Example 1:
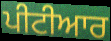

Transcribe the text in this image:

ਪੀਟੀਆਰ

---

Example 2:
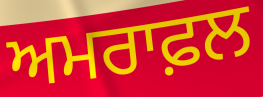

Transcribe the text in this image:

ਅਮਰਾਫ਼ਲ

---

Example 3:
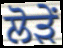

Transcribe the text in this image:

ਲੋੜੇਂ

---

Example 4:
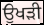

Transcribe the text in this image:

ਉਖੜੀ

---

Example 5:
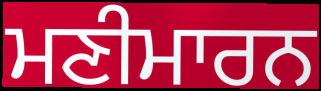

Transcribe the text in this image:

ਮਣੀਮਾਰਨ